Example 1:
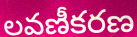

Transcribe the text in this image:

లవణీకరణ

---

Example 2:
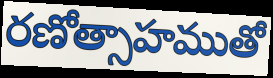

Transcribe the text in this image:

రణోత్సాహముతో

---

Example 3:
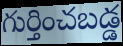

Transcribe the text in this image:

గుర్తించబడ్డ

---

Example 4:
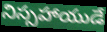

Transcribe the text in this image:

నిస్సహాయుడే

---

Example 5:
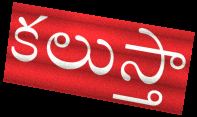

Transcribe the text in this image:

కలుస్తా